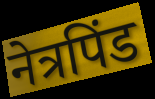
नेत्रपिंड